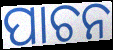
ପାଚନ